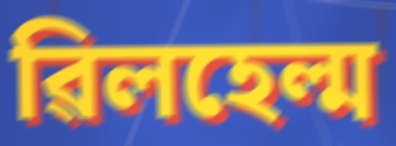
ৱিলহেল্ম